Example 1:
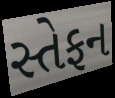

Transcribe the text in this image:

સ્તેફન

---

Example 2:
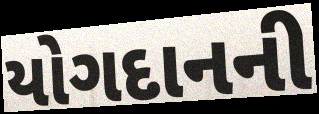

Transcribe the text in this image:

યોગદાનની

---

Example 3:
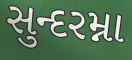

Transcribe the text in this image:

સુન્દરમ્ના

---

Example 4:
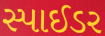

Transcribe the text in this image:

સ્પાઈડર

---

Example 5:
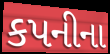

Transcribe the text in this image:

કપનીના